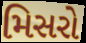
મિસરો